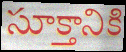
సూక్తానికి